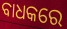
ବାଧକରେ